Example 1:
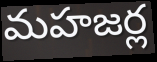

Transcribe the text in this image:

మహజర్ల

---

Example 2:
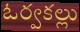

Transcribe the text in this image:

ఓర్వకల్లు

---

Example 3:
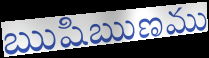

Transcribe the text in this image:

ఋషిఋణము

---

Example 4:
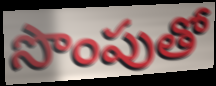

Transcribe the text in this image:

సొంపుతో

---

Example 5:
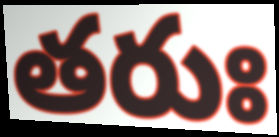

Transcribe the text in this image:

తరుః